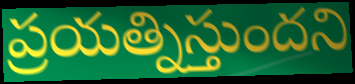
ప్రయత్నిస్తుందని